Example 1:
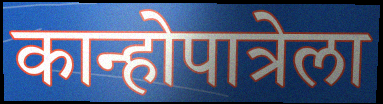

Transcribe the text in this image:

कान्होपात्रेला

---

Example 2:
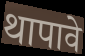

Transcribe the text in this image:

थापावे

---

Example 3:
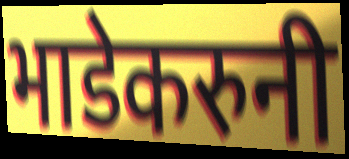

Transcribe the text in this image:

भाडेकरुनी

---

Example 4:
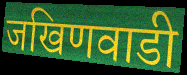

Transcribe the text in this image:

जखिणवाडी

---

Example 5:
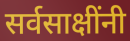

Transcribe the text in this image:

सर्वसाक्षींनी